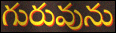
గురువును